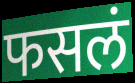
फसलं